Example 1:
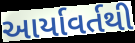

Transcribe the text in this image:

આર્યાવર્તથી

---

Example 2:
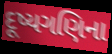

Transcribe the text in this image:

દૂષ્યગણિના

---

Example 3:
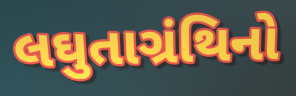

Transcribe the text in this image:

લઘુતાગ્રંથિનો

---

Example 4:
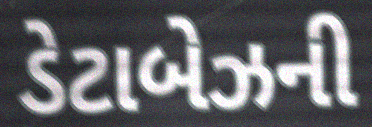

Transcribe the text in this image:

ડેટાબેઝની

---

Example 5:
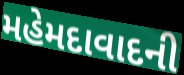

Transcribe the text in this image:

મહેમદાવાદની